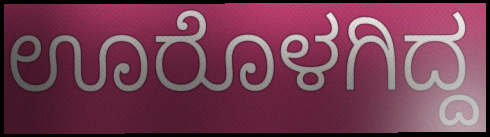
ಊರೊಳಗಿದ್ದ